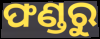
ଫଣ୍ଡରୁ